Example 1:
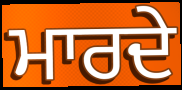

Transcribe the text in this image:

ਮਾਰਦੇ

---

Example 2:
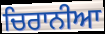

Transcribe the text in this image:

ਚਿਰਾਨੀਆ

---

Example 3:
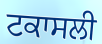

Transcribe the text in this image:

ਟਕਾਸਲੀ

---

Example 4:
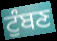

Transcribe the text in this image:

ਟੁੰਬਣ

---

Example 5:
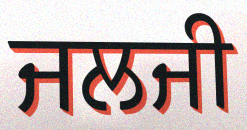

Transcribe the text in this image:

ਜਲਜੀ